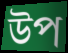
উপ